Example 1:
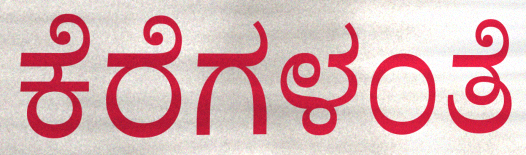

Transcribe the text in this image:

ಕೆರೆಗಳಂತೆ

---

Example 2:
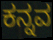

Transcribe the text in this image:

ಕನ್ನವ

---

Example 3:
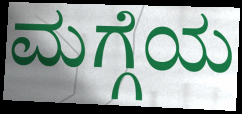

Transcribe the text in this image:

ಮಗ್ಗೆಯ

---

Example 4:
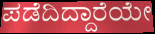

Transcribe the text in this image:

ಪಡೆದಿದ್ದಾರೆಯೇ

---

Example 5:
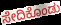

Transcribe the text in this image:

ಸೇದಿಕೊಂಡು